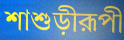
শাশুড়ীরূপী